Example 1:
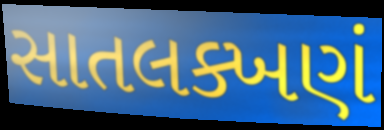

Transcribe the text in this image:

સાતલક્ખણં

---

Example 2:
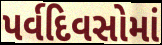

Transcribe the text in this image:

પર્વદિવસોમાં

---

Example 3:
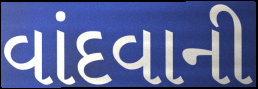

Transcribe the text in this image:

વાંદવાની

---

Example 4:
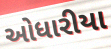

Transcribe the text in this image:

ઓધારીયા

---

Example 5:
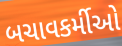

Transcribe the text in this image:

બચાવકર્મીઓ